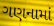
ગણનામાં